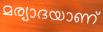
മര്യാദയാണ്